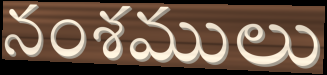
నంశములు